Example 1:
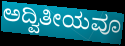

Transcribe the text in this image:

ಅದ್ವಿತೀಯವೂ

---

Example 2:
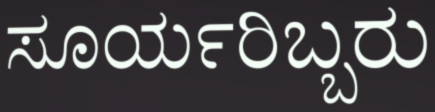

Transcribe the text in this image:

ಸೂರ್ಯರಿಬ್ಬರು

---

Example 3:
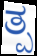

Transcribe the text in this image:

ತ್ಪ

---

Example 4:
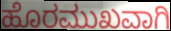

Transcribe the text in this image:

ಹೊರಮುಖವಾಗಿ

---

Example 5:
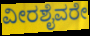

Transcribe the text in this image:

ವೀರಶೈವರೇ